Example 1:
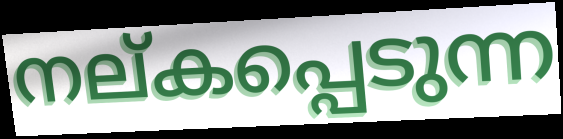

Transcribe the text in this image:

നല്കപ്പെടുന്ന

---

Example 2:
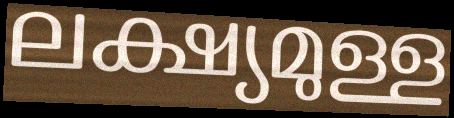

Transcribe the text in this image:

ലക്ഷ്യമുള്ള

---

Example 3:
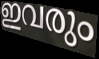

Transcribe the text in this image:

ഇവരും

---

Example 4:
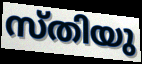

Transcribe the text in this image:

സ്തിയു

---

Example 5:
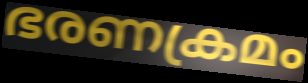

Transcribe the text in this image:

ഭരണക്രമം